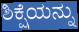
ಶಿಕ್ಷೆಯನ್ನು